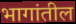
भागांतील